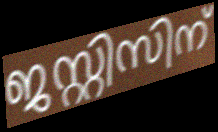
ജസ്റ്റിസിന്